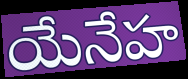
యేనేహ